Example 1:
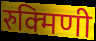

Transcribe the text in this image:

रुक्मिणी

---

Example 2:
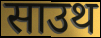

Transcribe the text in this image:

साउथ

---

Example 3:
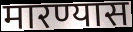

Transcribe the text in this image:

मारण्यास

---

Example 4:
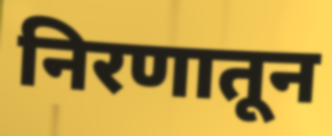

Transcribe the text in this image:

निरणातून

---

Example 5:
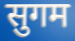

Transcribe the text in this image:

सुगम